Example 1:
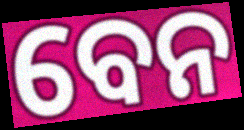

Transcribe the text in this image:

ବେନ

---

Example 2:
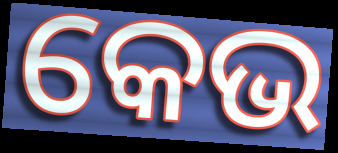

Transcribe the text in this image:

କେଭ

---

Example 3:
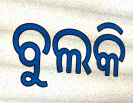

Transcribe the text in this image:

ବୁଲକି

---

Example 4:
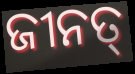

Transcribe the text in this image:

ଜୀନତ୍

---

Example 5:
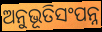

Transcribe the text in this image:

ଅନୁଭୂତିସଂପନ୍ନ